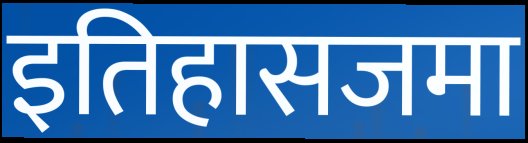
इतिहासजमा